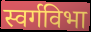
स्वर्गविभा